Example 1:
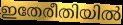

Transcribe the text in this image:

ഇതേരീതിയിൽ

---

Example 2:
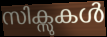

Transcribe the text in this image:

സിക്സുകൾ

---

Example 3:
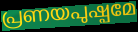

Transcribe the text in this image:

പ്രണയപുഷ്പമേ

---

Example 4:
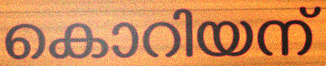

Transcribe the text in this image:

കൊറിയന്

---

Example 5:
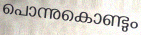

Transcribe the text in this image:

പൊന്നുകൊണ്ടും